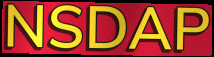
NSDAP